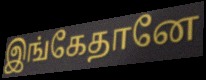
இங்கேதானே